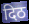
दिठ